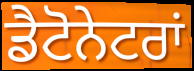
ਡੈਟੋਨੇਟਰਾਂ